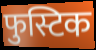
फुस्टिक